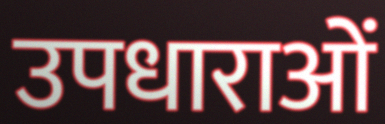
उपधाराओं